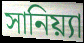
সানিয়্যা